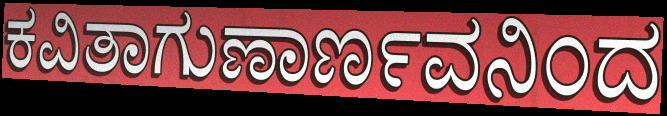
ಕವಿತಾಗುಣಾರ್ಣವನಿಂದ